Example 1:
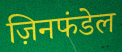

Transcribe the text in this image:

ज़िनफंडेल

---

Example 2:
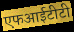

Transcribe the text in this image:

एफआईटीटी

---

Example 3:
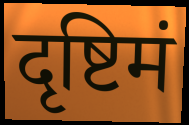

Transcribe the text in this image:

दृष्टिमं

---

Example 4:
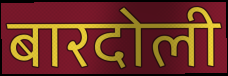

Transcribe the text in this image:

बारदोली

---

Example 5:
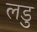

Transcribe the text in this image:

लडु